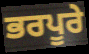
ਭਰਪੂਰੇ